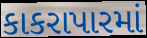
કાકરાપારમાં